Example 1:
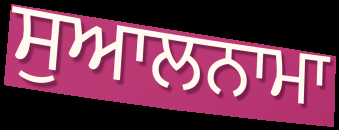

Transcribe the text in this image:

ਸੁਆਲਨਾਮਾ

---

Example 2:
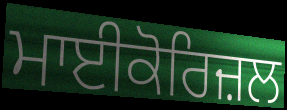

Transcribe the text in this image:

ਮਾਈਕੋਰਿਜ਼ਲ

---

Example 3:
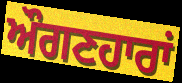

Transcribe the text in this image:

ਔਗਣਹਾਰਾਂ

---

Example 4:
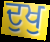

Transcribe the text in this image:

ਦੁਖੁ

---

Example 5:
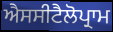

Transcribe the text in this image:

ਐਸਸੀਟੈਲੋਪ੍ਰਾਮ